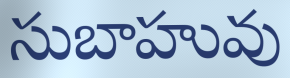
సుబాహువు